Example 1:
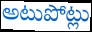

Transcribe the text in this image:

అటుపోట్లు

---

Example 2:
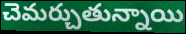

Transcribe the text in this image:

చెమర్చుతున్నాయి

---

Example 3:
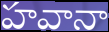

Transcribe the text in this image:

హవానా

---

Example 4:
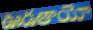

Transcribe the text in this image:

ఊడతాయో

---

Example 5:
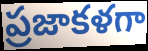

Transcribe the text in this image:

ప్రజాకళగా